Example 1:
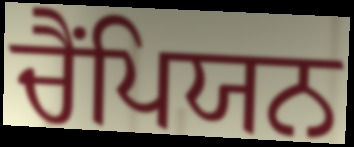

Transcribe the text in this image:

ਚੈੰਪਿਯਨ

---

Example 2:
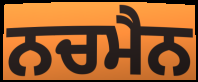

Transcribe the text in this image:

ਨਚਮੈਨ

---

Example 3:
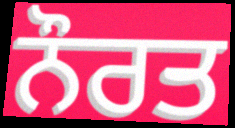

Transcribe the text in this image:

ਨੌਰਤ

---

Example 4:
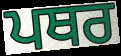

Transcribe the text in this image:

ਪਥਰ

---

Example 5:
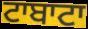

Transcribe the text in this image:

ਟਾਬਾਟਾ